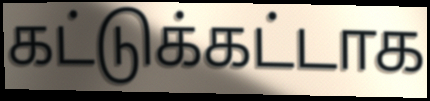
கட்டுக்கட்டாக